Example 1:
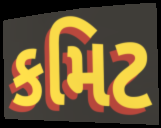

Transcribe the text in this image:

કમિટ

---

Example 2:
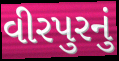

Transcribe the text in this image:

વીરપુરનું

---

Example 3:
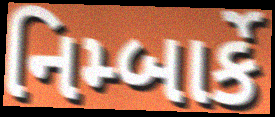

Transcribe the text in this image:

નિમ્બાર્કે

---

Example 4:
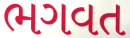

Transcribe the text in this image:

ભગવત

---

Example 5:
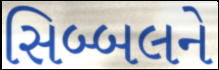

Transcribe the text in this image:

સિબ્બલને